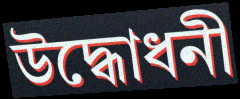
উদ্ধোধনী